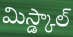
మిస్డ్కాల్